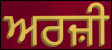
ਅਰਜ਼ੀ